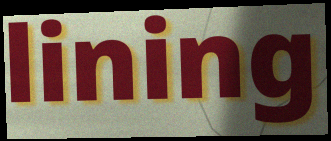
lining